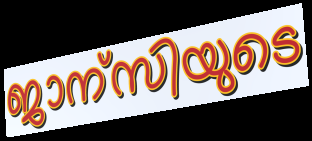
ജാന്സിയുടെ